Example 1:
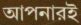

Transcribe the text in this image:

আপনারই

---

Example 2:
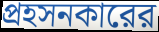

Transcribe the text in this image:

প্রহসনকারের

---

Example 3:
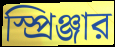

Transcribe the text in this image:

স্প্রিঞ্জার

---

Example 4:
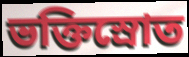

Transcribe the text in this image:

ভক্তিস্রোত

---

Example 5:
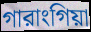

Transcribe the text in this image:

গারাংগিয়া